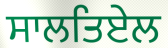
ਸਾਲਤਿਏਲ